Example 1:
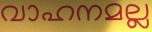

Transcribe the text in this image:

വാഹനമല്ല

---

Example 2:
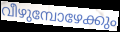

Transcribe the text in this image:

വീഴുമ്പോഴേക്കും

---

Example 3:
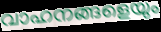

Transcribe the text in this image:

വാഹനങ്ങളെയും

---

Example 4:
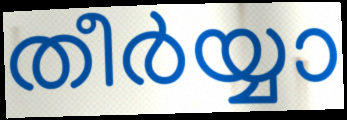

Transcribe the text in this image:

തീർയ്യാ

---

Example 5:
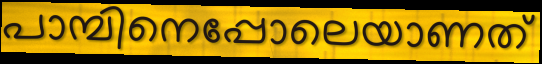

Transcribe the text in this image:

പാമ്പിനെപ്പോലെയാണത്